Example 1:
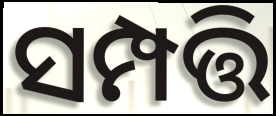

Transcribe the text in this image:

ସମ୍ପତ୍ତି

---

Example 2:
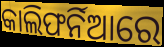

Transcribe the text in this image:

କାଲିଫର୍ନିଆରେ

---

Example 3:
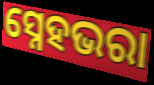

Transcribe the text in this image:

ସ୍ନେହଭରା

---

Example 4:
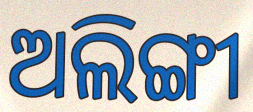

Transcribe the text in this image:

ଅଲିଙ୍ଗୀ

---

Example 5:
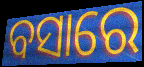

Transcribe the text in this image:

ବସାରେ